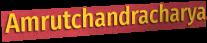
Amrutchandracharya